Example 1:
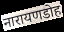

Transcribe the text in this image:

नारायणडोह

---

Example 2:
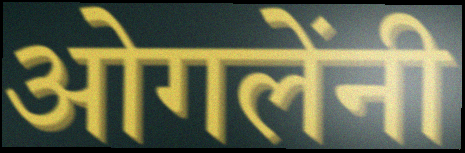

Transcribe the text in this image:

ओगलेंनी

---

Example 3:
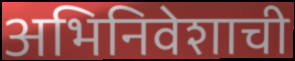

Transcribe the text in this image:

अभिनिवेशाची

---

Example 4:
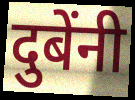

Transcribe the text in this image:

दुबेंनी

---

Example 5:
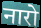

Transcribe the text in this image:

नारो